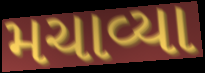
મચાવ્યા